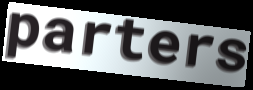
parters